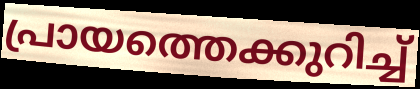
പ്രായത്തെക്കുറിച്ച്